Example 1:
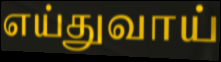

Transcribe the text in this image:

எய்துவாய்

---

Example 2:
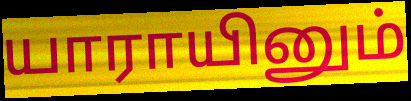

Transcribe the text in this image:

யாராயினும்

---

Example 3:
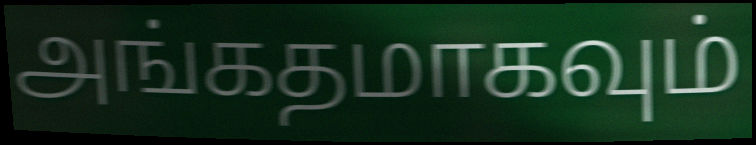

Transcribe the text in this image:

அங்கதமாகவும்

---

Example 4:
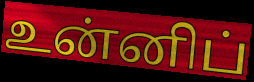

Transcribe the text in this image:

உன்னிப்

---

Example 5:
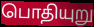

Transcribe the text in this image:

பொதியுறு